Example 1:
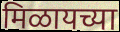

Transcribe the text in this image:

मिळायच्या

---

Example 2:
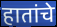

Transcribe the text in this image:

हातांचे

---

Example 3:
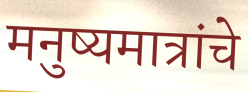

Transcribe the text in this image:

मनुष्यमात्रांचे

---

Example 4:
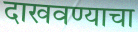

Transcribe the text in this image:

दाखवण्याचा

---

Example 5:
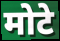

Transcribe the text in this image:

मोटे